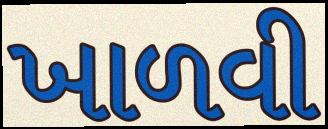
ખાળવી